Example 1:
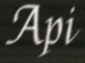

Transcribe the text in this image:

Api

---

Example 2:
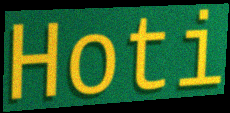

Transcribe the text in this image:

Hoti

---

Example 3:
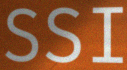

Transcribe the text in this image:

SSI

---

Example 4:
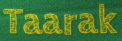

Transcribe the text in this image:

Taarak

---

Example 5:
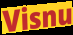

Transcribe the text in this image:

Visnu